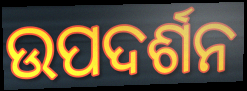
ଉପଦର୍ଶନ